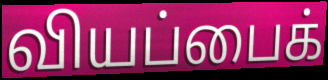
வியப்பைக்